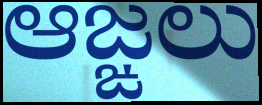
ఆజ్ఙలు